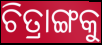
ଚିତ୍ରାଙ୍ଗକୁ